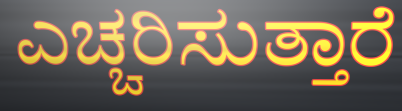
ಎಚ್ಚರಿಸುತ್ತಾರೆ